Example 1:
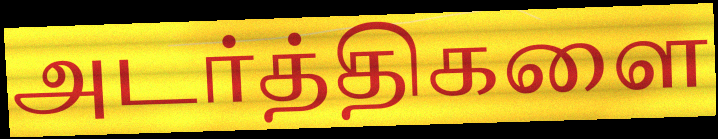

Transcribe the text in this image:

அடர்த்திகளை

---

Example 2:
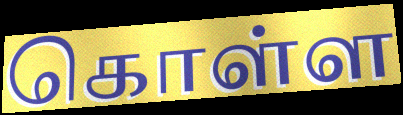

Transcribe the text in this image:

கொள்ள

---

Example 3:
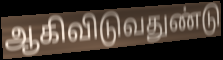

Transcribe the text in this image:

ஆகிவிடுவதுண்டு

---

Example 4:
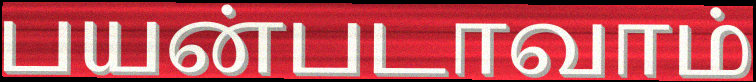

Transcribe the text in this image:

பயன்படாவாம்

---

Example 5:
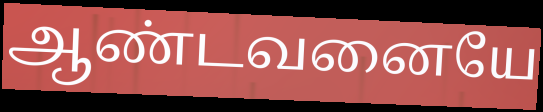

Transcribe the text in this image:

ஆண்டவனையே